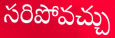
సరిపోవచ్చు